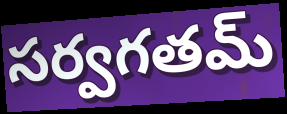
సర్వగతమ్